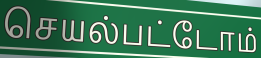
செயல்பட்டோம்